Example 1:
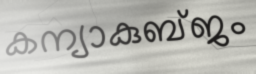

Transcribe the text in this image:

കന്യാകുബ്ജം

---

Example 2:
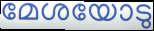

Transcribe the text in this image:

മേശയോടു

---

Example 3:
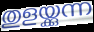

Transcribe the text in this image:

തുളയ്ക്കുന്ന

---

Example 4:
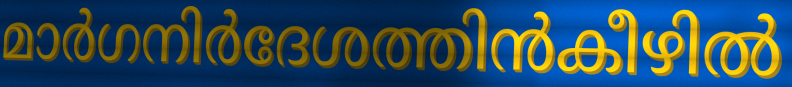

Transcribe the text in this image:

മാർഗനിർദേശത്തിൻകീഴിൽ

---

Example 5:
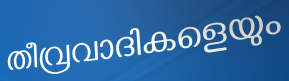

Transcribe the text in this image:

തീവ്രവാദികളെയും